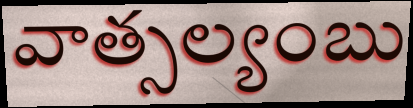
వాత్సల్యంబు